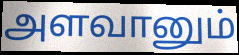
அளவானும்